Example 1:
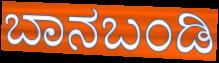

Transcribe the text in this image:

ಬಾನಬಂಡಿ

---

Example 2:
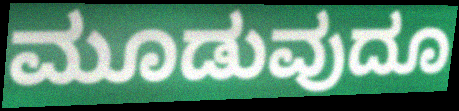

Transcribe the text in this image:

ಮೂಡುವುದೂ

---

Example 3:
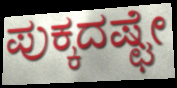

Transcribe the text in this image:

ಪುಕ್ಕದಷ್ಟೇ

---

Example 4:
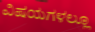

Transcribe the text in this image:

ವಿಷಯಗಳಲ್ಲೂ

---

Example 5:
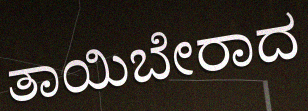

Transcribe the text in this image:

ತಾಯಿಬೇರಾದ